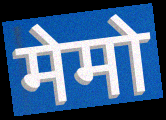
मेमो